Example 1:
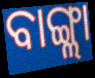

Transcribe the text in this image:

ବାଙ୍ଗ୍ଲା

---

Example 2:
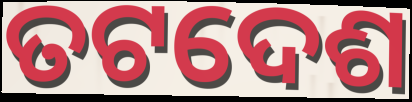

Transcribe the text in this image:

ତଟଦେଶ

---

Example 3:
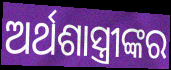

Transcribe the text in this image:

ଅର୍ଥଶାସ୍ତ୍ରୀଙ୍କର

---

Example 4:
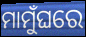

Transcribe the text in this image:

ମାମୁଁଘରେ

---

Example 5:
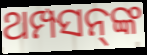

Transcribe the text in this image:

ଥମ୍ପସନ୍‌ଙ୍କ